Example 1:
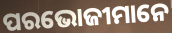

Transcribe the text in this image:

ପରଭୋଜୀମାନେ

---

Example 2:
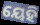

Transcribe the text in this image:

ୟେହି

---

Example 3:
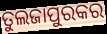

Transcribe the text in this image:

ତୁଲଜାପୁରକର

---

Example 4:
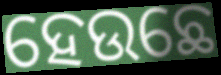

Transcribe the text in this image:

ହେଉଛେ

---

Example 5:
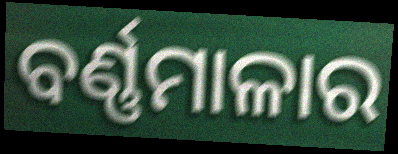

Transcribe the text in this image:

ବର୍ଣ୍ଣମାଳାର